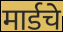
मार्डचे